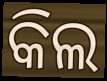
କିଲ